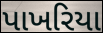
પાખરિયા